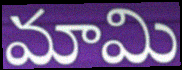
మామి